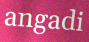
angadi